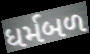
ધર્મબળ